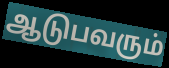
ஆடுபவரும்